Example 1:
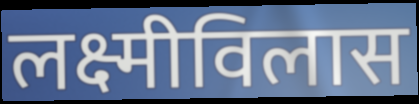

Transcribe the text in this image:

लक्ष्मीविलास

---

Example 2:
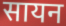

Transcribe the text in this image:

सायन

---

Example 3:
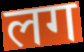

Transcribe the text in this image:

लग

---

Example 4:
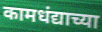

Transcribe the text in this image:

कामधंद्याच्या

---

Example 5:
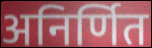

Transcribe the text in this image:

अनिर्णित